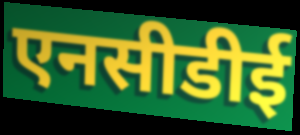
एनसीडीई